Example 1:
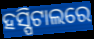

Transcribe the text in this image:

ହସ୍ପିଟାଲରେ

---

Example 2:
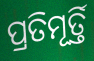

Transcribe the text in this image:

ପ୍ରତିମୂର୍ତ୍ତି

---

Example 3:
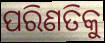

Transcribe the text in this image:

ପରିଣତିକୁ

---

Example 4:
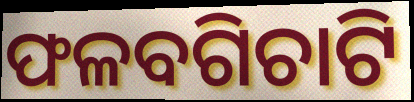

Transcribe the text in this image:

ଫଳବଗିଚାଟି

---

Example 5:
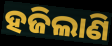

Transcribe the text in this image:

ହଜିଲାଣି